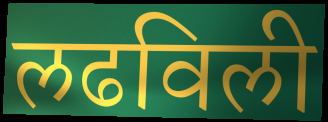
लढविली